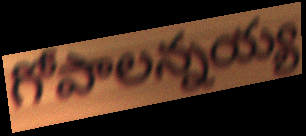
గోపాలన్నయ్య